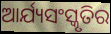
ଆର୍ଯ୍ୟସଂସ୍କୃତିର